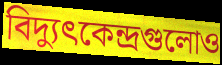
বিদ্যুৎকেন্দ্রগুলোও